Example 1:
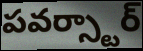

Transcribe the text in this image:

పవర్స్టార్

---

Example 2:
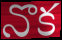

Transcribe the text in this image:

నొక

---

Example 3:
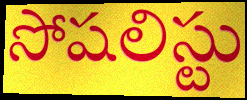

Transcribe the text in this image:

సోషలిస్టు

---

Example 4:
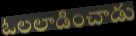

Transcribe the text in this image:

ఓలలాడించాడు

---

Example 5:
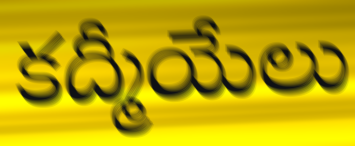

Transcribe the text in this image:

కద్మీయేలు